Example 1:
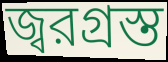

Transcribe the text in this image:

জ্বরগ্রস্ত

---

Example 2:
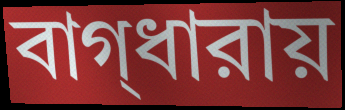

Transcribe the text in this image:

বাগ্‌ধারায়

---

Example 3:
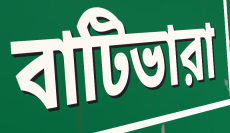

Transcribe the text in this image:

বাটিভারা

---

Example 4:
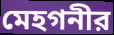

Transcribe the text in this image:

মেহগনীর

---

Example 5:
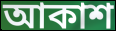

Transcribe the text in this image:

আকাশ